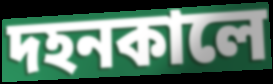
দহনকালে